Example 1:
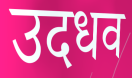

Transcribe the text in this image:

उदधव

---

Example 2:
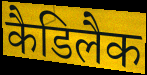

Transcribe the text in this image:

कैडिलैक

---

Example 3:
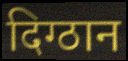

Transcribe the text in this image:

दिग्ठान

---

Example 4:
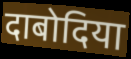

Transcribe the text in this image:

दाबोदिया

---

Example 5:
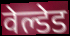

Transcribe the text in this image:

वेल्डेड